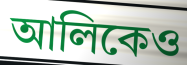
আলিকেও